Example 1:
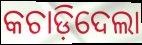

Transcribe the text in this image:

କଚାଡ଼ିଦେଲା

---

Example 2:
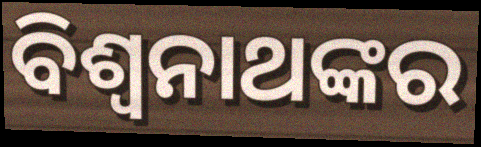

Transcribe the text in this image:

ବିଶ୍ୱନାଥଙ୍କର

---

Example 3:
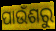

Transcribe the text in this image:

ପାଉଁଶରୁ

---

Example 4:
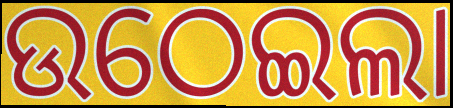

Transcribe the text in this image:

ଉଠେଇଲା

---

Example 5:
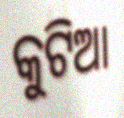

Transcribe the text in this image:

କୁଟିଆ